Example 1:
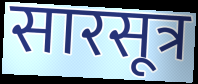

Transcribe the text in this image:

सारसूत्र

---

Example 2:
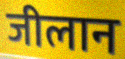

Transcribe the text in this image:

जीलान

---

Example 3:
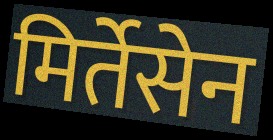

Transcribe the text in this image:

मिर्तेसेन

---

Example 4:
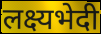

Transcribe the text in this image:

लक्ष्यभेदी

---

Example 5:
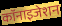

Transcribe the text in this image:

कॉनाइजेशन